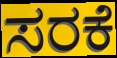
ಸರಕೆ